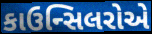
કાઉન્સિલરોએ